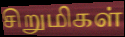
சிறுமிகள்